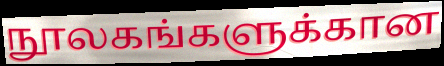
நூலகங்களுக்கான